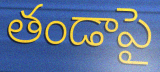
తండాపై